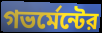
গভর্মেন্টের